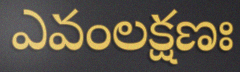
ఎవంలక్షణః